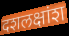
दशलक्षांश